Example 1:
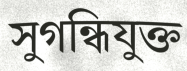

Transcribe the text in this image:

সুগন্ধিযুক্ত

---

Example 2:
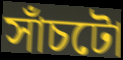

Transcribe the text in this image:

সাঁচটো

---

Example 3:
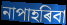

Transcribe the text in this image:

নাপাহৰিবা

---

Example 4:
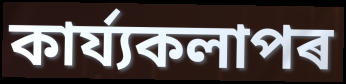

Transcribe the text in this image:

কাৰ্য্যকলাপৰ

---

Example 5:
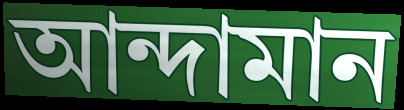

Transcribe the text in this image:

আন্দামান